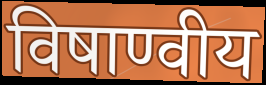
विषाण्वीय